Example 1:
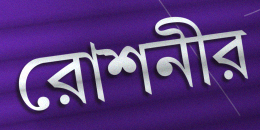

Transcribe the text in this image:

রোশনীর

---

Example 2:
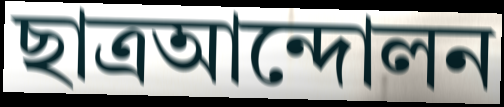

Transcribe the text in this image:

ছাত্রআন্দোলন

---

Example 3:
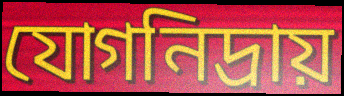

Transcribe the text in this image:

যোগনিদ্রায়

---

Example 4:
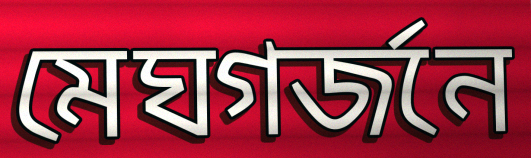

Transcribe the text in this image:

মেঘগর্জনে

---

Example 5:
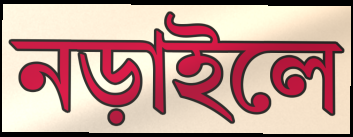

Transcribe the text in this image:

নড়াইলে